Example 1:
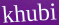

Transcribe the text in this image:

khubi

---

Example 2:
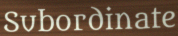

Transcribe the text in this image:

Subordinate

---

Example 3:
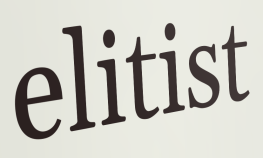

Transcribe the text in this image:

elitist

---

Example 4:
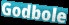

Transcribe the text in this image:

Godbole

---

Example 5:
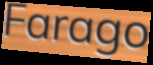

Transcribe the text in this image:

Farago